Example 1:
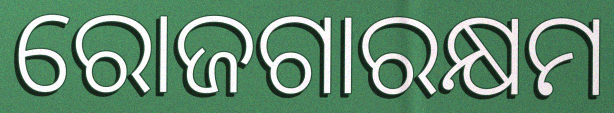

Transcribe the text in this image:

ରୋଜଗାରକ୍ଷମ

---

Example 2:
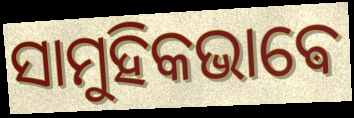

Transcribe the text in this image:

ସାମୁହିକଭାଵେ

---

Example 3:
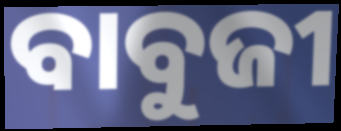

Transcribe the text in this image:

ବାବୁଜୀ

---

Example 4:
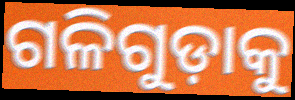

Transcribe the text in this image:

ଗଳିଗୁଡ଼ାକୁ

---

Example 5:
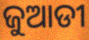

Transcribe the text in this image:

ଜୁଆଡୀ